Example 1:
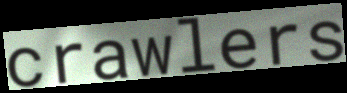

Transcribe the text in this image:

crawlers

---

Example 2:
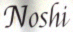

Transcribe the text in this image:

Noshi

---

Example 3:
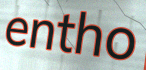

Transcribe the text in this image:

entho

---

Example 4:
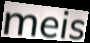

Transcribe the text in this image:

meis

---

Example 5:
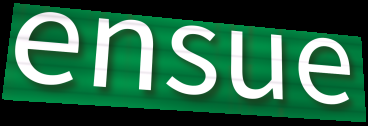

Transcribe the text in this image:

ensue